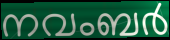
നവംബർ